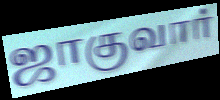
ஜாகுவார்